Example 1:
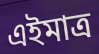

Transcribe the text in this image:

এইমাত্ৰ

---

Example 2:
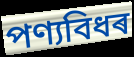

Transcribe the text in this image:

পণ্যবিধৰ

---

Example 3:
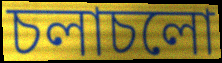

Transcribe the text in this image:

চলাচলো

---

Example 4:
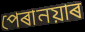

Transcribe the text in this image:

পেৰানয়াৰ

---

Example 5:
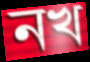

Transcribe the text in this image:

নখ